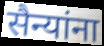
सैन्यांना